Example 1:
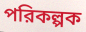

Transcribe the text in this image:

পরিকল্পক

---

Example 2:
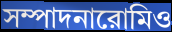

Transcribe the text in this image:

সম্পাদনারোমিও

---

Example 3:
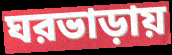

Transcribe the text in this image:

ঘরভাড়ায়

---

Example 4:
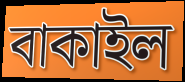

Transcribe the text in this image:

বাকাইল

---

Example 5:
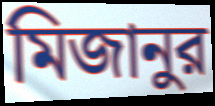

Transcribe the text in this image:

মিজানুর